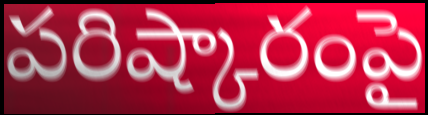
పరిష్కారంపై